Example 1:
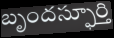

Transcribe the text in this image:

బృందస్ఫూర్తి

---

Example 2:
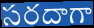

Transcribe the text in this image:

సరదాగా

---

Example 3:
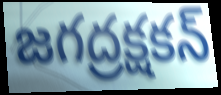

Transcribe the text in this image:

జగద్రక్షకన్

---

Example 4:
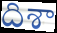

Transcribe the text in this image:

దిశా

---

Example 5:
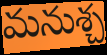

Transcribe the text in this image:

మనుశ్చ